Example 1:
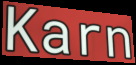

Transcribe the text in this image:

Karn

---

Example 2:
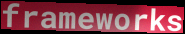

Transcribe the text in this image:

frameworks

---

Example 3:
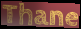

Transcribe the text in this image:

Thane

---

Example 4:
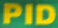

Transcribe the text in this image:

PID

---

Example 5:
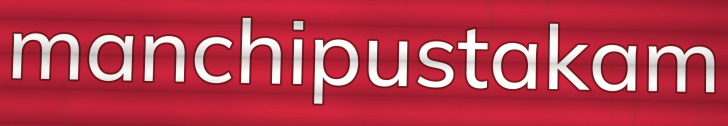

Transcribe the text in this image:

manchipustakam